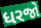
ધરજો